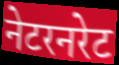
नेटरनरेट